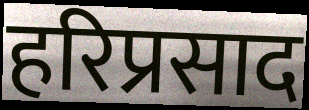
हरिप्रसाद